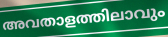
അവതാളത്തിലാവും